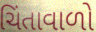
ચિંતાવાળો